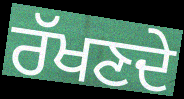
ਰੱਖਣਦੇ